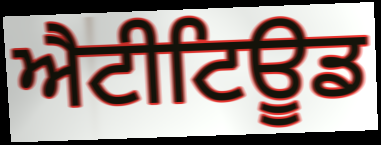
ਐਟੀਟਿਊਡ